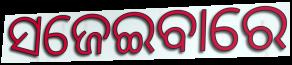
ସଜେଇବାରେ